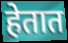
हेतात